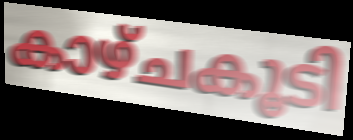
കാഴ്ചകൂടി